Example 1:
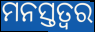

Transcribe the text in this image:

ମନସ୍ତତ୍ଵର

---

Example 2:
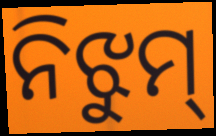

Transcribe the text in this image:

ନିଝୁମ୍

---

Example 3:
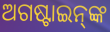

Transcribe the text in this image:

ଅଗଷ୍ଟାଇନ୍‌ଙ୍କ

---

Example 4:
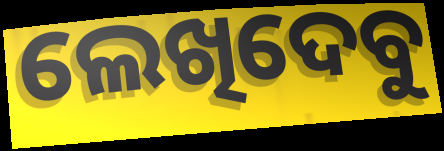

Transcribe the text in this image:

ଲେଖିଦେବୁ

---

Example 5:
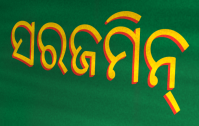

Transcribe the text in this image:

ସରଜମିନ୍